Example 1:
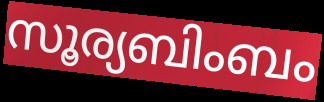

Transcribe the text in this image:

സൂര്യബിംബം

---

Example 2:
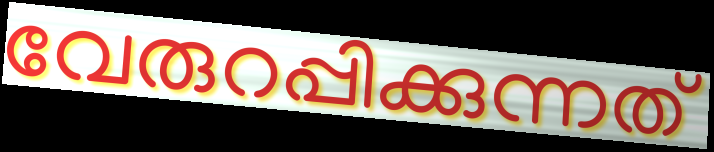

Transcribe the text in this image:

വേരുറപ്പിക്കുന്നത്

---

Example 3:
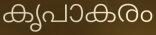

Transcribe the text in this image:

കൃപാകരം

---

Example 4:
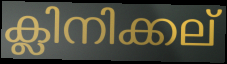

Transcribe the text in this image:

ക്ലിനിക്കല്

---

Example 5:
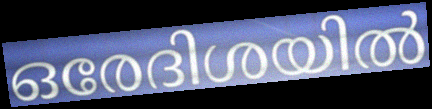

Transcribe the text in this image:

ഒരേദിശയിൽ